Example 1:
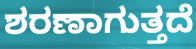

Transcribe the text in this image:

ಶರಣಾಗುತ್ತದೆ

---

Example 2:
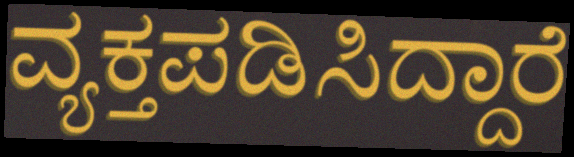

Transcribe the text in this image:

ವ್ಯಕ್ತಪಡಿಸಿದ್ದಾರೆ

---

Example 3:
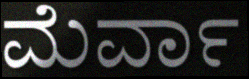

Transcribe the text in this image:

ಮೆರ್ವಾ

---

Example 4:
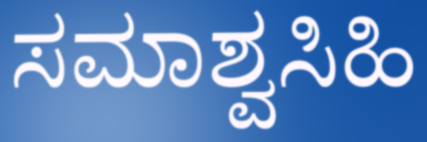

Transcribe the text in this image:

ಸಮಾಶ್ವಸಿಹಿ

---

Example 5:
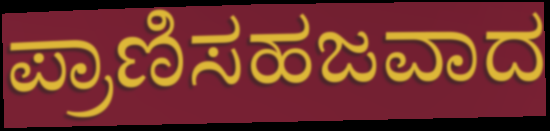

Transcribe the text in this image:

ಪ್ರಾಣಿಸಹಜವಾದ